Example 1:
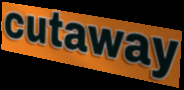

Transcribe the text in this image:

cutaway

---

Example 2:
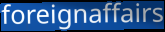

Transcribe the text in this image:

foreignaffairs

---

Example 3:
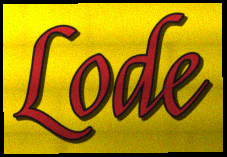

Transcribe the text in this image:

Lode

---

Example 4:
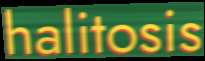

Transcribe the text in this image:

halitosis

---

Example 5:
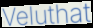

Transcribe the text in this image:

Veluthat